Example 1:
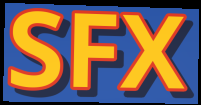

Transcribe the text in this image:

SFX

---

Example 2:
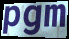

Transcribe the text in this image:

pgm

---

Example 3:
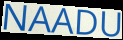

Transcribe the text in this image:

NAADU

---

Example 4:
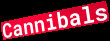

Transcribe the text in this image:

Cannibals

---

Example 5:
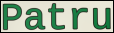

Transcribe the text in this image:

Patru